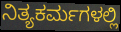
ನಿತ್ಯಕರ್ಮಗಳಲ್ಲಿ